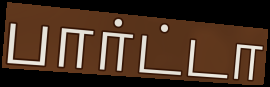
பார்ட்டா